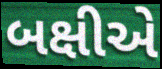
બક્ષીએ